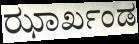
ಝಾರ್ಖಂಡ